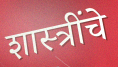
शास्त्रींचे